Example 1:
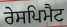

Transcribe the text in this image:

ਰੇਸਪਿਮੈਟ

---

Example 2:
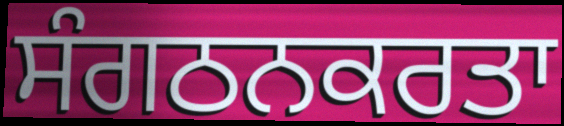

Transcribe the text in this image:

ਸੰਗਠਨਕਰਤਾ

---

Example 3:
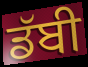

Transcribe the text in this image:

ਡੱਬੀ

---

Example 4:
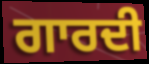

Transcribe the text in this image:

ਗਾਰਦੀ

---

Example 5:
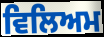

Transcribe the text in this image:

ਵਿਲਿਅਮ